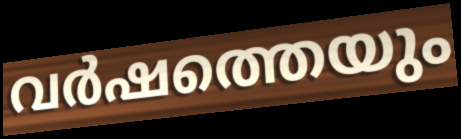
വർഷത്തെയും